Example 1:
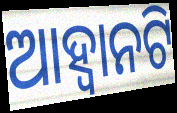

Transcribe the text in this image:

ଆହ୍ଵାନଟି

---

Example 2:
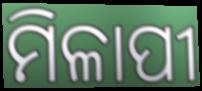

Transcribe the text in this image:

ମିଳାପୀ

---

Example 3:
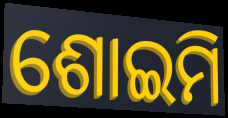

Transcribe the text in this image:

ଶୋଇମି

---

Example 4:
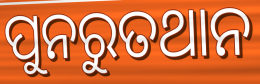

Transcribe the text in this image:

ପୁନରୁତଥାନ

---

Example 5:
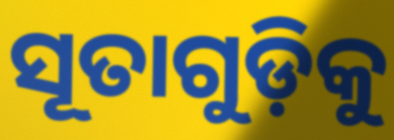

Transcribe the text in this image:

ସୂତାଗୁଡ଼ିକୁ